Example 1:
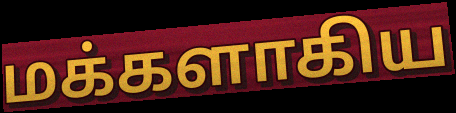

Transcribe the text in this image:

மக்களாகிய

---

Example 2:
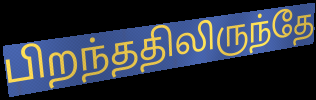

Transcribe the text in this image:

பிறந்ததிலிருந்தே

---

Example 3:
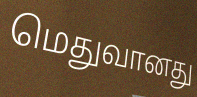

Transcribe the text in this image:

மெதுவானது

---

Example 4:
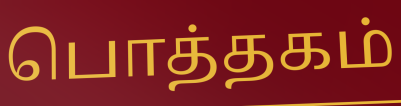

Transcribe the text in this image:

பொத்தகம்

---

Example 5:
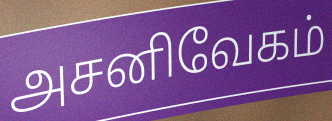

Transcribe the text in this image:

அசனிவேகம்